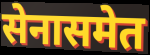
सेनासमेत